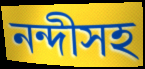
নন্দীসহ